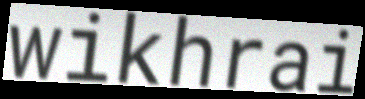
wikhrai